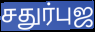
சதுர்புஜ